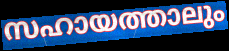
സഹായത്താലും